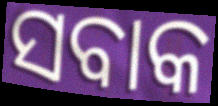
ସବାକ